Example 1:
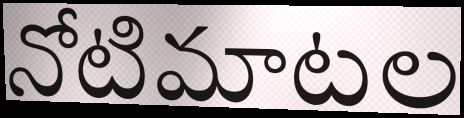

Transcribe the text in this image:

నోటిమాటల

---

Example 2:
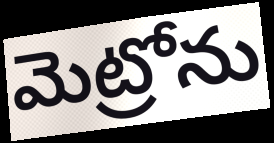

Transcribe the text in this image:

మెట్రోను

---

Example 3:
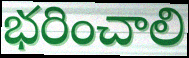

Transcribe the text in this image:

భరించాలి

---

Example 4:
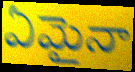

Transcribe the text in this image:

ఏమైనా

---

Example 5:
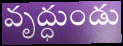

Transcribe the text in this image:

వృద్ధుండు